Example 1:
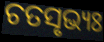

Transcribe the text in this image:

ଚତସୃଭ୍ୟଃ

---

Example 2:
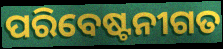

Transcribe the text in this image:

ପରିବେଷ୍ଟନୀଗତ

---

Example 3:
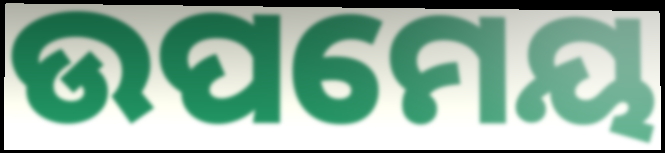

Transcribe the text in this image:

ଉପମେୟ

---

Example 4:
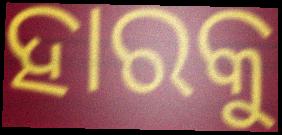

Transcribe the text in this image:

ହାରକୁ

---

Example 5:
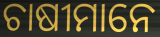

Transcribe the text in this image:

ଚାଷୀମାନେ